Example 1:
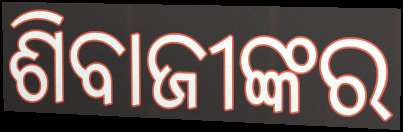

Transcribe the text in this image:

ଶିବାଜୀଙ୍କର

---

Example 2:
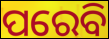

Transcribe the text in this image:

ପରେବି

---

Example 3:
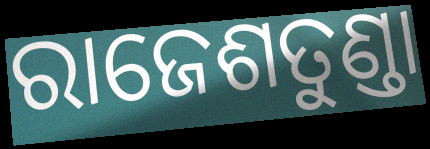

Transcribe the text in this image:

ରାଜେଶତୁଣ୍ଡା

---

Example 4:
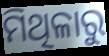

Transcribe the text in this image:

ମିଥିଳାରୁ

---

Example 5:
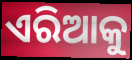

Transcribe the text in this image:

ଏରିଆକୁ